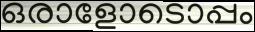
ഒരാളോടൊപ്പം